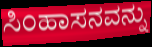
ಸಿಂಹಾಸನವನ್ನು